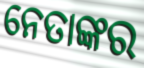
ନେତାଙ୍କର